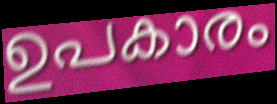
ഉപകാരം